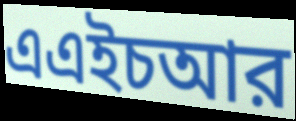
এএইচআর